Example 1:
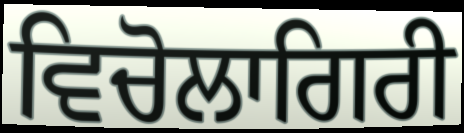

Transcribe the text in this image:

ਵਿਚੋਲਾਗਿਰੀ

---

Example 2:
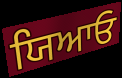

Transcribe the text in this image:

ਯਿਆਓ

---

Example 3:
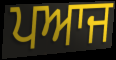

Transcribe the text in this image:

ਪਆਜ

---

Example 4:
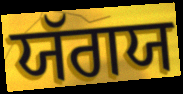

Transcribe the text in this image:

ਯੱਗਯ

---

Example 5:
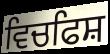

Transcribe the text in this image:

ਵਿਚਫਿਸ਼